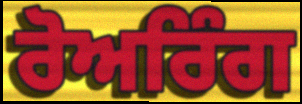
ਰੋਅਰਿੰਗ